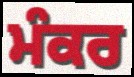
ਮੰਕਰ